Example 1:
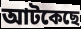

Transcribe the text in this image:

আটকেছে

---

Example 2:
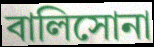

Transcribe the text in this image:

বালিসোনা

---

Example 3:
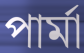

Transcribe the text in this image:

পার্মা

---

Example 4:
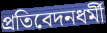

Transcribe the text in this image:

প্রতিবেদনধর্মী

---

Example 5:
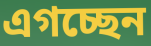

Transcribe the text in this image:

এগচ্ছেন